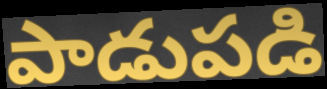
పాడుపడి